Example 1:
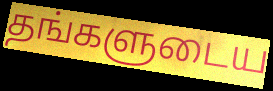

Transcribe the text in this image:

தங்களுடைய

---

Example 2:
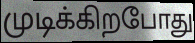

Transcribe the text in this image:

முடிக்கிறபோது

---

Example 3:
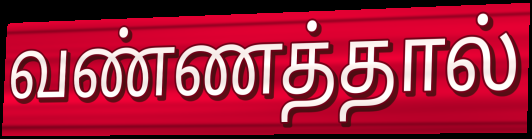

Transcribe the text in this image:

வண்ணத்தால்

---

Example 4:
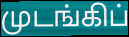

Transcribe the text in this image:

முடங்கிப்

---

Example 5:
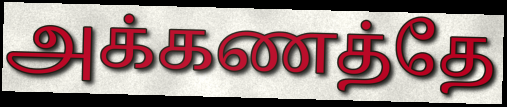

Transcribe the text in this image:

அக்கணத்தே